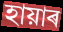
হায়াৰ